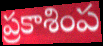
ప్రకాశింప